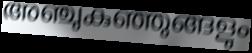
അഞ്ചുകുഞ്ഞുങ്ങളും